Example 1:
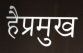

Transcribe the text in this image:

हैप्रमुख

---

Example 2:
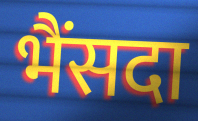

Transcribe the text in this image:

भैंसदा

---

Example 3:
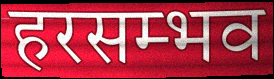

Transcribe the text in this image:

हरसम्भव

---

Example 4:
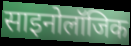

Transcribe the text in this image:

साइनोलॉजिक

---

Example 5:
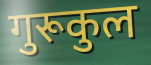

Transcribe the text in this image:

गुरूकुल